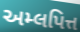
અમ્લપિત્ત